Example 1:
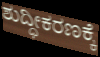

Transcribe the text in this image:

ಶುದ್ಧೀಕರಣಕ್ಕೆ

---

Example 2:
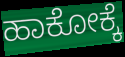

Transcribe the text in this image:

ಹಾಕೋಕ್ಕೆ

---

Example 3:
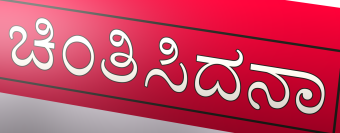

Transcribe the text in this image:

ಚಿಂತಿಸಿದನಾ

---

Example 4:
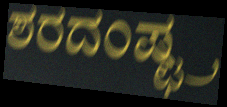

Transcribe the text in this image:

ಶರದಂಷ್ಟ್ರ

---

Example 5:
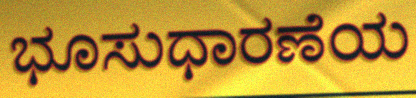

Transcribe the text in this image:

ಭೂಸುಧಾರಣೆಯ